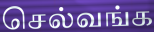
செல்வங்க